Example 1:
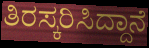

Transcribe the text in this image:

ತಿರಸ್ಕರಿಸಿದ್ದಾನೆ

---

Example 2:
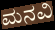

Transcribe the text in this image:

ಮನವಿ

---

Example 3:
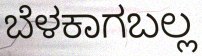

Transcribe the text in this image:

ಬೆಳಕಾಗಬಲ್ಲ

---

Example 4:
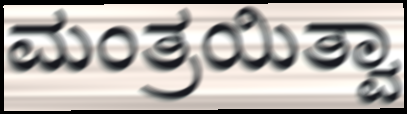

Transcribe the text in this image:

ಮಂತ್ರಯಿತ್ವಾ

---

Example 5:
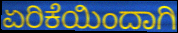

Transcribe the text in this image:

ಏರಿಕೆಯಿಂದಾಗಿ